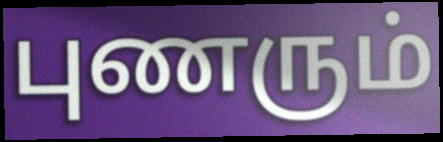
புணரும்